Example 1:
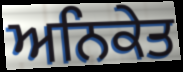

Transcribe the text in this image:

ਅਨਿਕੇਤ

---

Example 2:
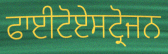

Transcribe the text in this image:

ਫਾਈਟੋਏਸਟ੍ਰੋਜਨ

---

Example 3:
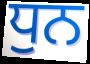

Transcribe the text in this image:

ਧੁਨ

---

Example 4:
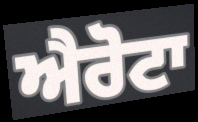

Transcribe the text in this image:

ਐਰੋਟਾ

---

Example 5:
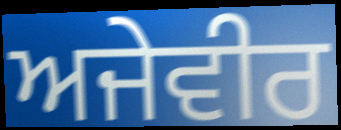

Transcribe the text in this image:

ਅਜੇਵੀਰ